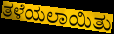
ತಳೆಯಲಾಯಿತು